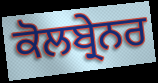
ਕੋਲਬ੍ਰੇਨਰ